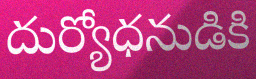
దుర్యోధనుడికి